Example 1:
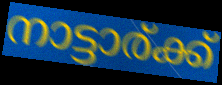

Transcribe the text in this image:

നാട്ടാര്ക്ക്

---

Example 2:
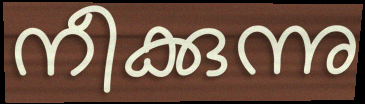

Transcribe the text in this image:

നീക്കുന്നു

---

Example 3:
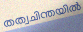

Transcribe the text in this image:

തത്വചിന്തയിൽ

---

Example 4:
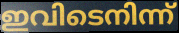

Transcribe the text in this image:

ഇവിടെനിന്ന്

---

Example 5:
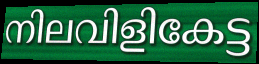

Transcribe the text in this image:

നിലവിളികേട്ട